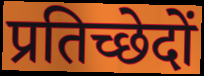
प्रतिच्छेदों